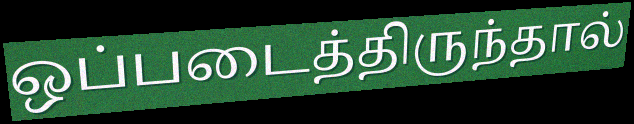
ஒப்படைத்திருந்தால்